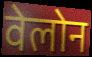
वेलोन